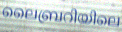
ലൈബ്രറിയിലെ